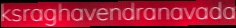
ksraghavendranavada